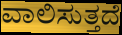
ವಾಲಿಸುತ್ತದೆ